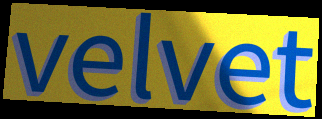
velvet